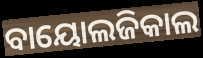
ବାୟୋଲଜିକାଲ